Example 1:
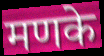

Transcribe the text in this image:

मणके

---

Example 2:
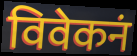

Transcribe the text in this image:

विवेकनं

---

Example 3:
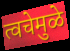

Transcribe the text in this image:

त्वचेमुळे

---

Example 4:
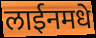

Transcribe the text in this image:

लाईनमधे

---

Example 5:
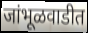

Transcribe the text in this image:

जांभूळवाडीत